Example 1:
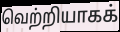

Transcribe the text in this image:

வெற்றியாகக்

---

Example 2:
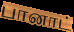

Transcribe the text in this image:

பானாட்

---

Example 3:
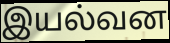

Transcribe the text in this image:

இயல்வன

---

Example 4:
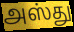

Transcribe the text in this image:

அஸ்து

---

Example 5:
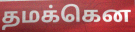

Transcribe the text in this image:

தமக்கென